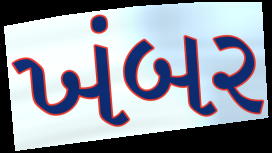
ખંબર